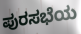
ಪುರಸಭೆಯ